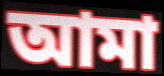
আমা